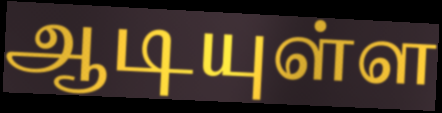
ஆடியுள்ள